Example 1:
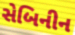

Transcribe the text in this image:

સેબિનીન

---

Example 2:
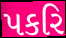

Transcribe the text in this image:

પકરિ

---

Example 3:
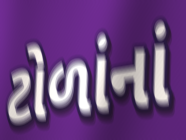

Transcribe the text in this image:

ટોળાંનાં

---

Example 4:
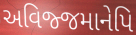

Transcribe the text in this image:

અવિજ્જમાનેપિ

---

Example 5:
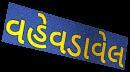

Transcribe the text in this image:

વહેવડાવેલ